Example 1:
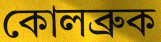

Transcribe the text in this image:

কোলব্রুক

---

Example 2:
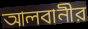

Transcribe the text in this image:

আলবানীর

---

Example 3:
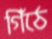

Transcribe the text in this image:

গিঁঠে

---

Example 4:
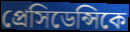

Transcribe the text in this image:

প্রেসিডেন্সিকে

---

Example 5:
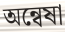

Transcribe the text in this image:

অন্বেষা